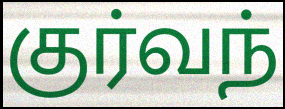
குர்வந்